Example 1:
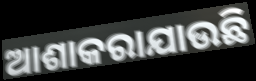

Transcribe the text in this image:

ଆଶାକରାଯାଉଛି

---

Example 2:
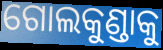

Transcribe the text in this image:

ଗୋଲକୁଣ୍ଡାକୁ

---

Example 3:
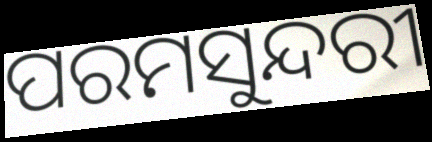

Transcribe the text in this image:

ପରମସୁନ୍ଦରୀ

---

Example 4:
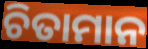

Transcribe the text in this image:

ଚିତାମାନ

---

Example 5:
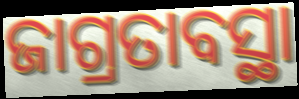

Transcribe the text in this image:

ଜାଗ୍ରତାବସ୍ଥା